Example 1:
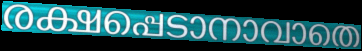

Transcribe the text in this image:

രക്ഷപ്പെടാനാവാതെ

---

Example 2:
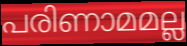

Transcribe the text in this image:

പരിണാമമല്ല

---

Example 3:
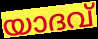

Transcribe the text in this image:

യാദവ്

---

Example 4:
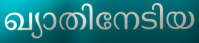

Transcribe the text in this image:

ഖ്യാതിനേടിയ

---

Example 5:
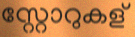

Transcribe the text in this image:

സ്റ്റോറുകള്